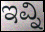
ಇವ್ನಿ